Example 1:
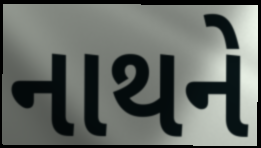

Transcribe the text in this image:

નાથને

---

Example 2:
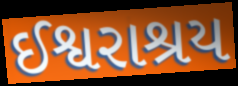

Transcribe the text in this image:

ઈશ્વરાશ્રય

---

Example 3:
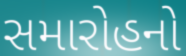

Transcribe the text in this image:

સમારોહનો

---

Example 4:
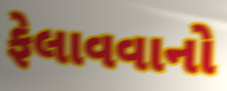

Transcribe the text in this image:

ફેલાવવાનો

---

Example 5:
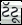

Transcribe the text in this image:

ટૅટૂ